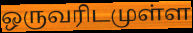
ஒருவரிடமுள்ள